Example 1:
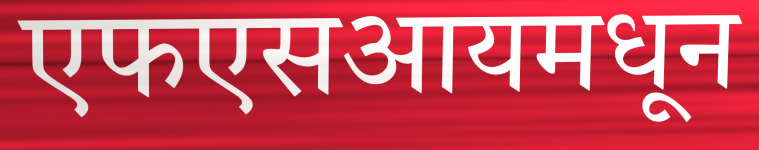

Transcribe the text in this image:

एफएसआयमधून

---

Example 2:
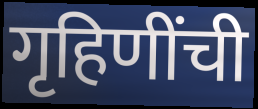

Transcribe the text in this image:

गृहिणींची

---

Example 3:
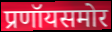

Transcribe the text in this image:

प्रणॉयसमोर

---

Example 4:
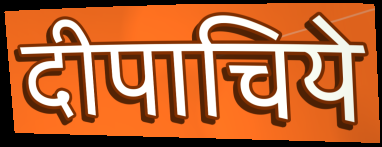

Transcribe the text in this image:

दीपाचिये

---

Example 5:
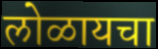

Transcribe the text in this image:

लोळायचा